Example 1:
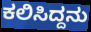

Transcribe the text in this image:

ಕಲಿಸಿದ್ದನು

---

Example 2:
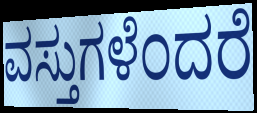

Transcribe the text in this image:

ವಸ್ತುಗಳೆಂದರೆ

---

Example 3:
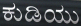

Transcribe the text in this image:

ಕುಡಿಯು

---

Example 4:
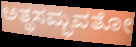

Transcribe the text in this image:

ಅತ್ಥಸಮ್ಭವತೋ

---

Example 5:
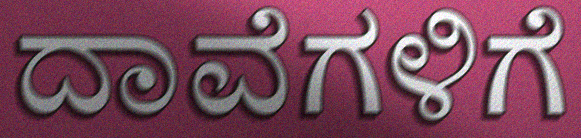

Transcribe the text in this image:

ದಾವೆಗಳಿಗೆ